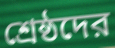
শ্রেষ্ঠদের